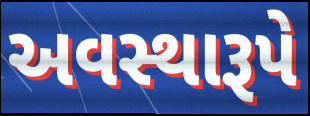
અવસ્થારૂપે